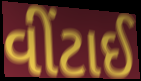
વીંટાઈ